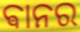
ଵାନର